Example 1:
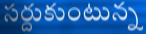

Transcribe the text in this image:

సర్దుకుంటున్న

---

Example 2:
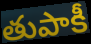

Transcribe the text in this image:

తుపాకీ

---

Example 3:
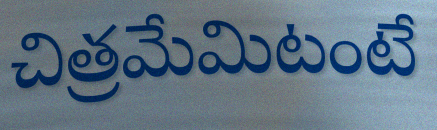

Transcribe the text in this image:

చిత్రమేమిటంటే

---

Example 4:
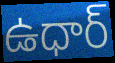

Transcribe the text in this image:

ఉధార్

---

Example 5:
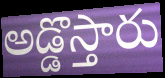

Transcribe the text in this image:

అడ్డొస్తారు